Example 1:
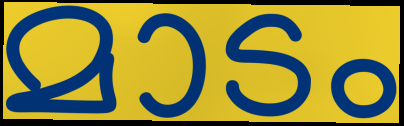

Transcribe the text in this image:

മാടം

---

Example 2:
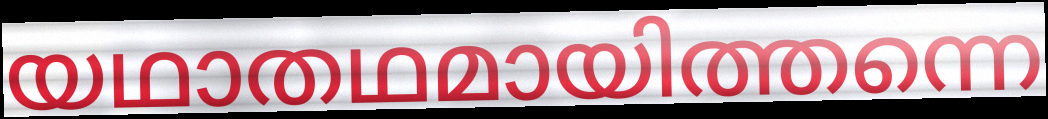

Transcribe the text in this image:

യഥാതഥമായിത്തന്നെ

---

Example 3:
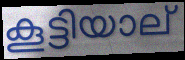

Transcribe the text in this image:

കൂട്ടിയാല്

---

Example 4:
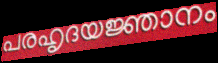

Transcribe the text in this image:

പരഹൃദയജ്ഞാനം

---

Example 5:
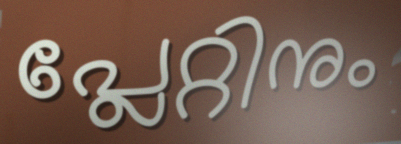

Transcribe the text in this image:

പ്ലേറ്റിനും